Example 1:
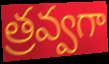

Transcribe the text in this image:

త్రవ్వగా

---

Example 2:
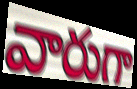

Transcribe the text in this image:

వారుగా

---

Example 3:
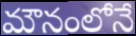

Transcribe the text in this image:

మౌనంలోనే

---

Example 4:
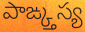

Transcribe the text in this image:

పాఙ్క్తస్య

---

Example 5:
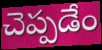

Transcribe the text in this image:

చెప్పడేం